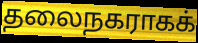
தலைநகராகக்